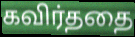
கவிர்ததை